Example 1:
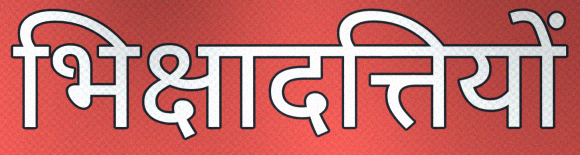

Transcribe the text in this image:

भिक्षादत्तियों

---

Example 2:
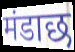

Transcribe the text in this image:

मंडाछ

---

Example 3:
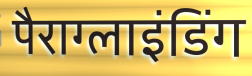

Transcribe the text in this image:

पैराग्लाइंडिंग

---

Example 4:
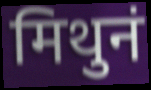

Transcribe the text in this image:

मिथुनं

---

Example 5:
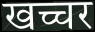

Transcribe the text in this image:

खच्‍चर